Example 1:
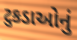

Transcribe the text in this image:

ટુકડાઓનું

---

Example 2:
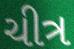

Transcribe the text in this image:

ચીત્ર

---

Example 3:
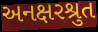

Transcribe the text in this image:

અનક્ષરશ્રુત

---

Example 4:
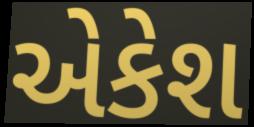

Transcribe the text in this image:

એકેશ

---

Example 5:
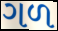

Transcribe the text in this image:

ગળ